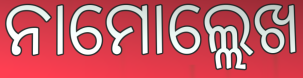
ନାମୋଲ୍ଲେଖ